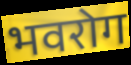
भवरोग